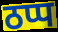
ठप्प